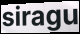
siragu